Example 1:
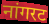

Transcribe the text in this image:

नांगरट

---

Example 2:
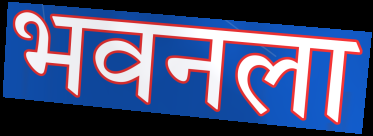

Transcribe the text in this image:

भवनला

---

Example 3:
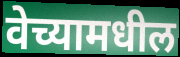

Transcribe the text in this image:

वेच्यामधील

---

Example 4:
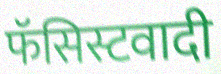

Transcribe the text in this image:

फॅसिस्टवादी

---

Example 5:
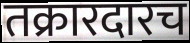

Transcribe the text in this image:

तक्रारदारच